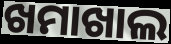
ଖମାଖାଲ